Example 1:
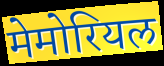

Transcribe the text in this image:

मेमोरियल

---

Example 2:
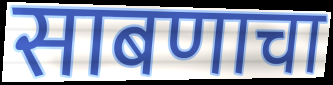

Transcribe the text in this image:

साबणाचा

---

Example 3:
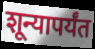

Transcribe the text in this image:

शून्यापर्यंत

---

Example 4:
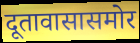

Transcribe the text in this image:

दूतावासासमोर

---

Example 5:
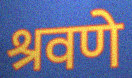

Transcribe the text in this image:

श्रवणे